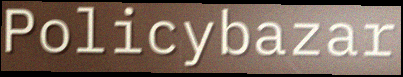
Policybazar